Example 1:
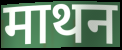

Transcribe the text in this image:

माथन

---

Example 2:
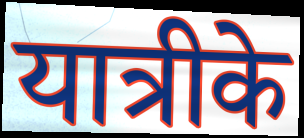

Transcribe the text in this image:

यात्रीके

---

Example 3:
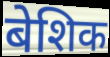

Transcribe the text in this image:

बेशिक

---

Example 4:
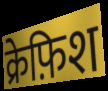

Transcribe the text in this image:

क्रेफ़िश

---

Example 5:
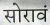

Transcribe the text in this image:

सोरावं